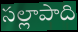
సల్లాపాది